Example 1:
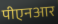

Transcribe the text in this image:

पीएनआर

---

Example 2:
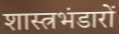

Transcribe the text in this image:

शास्त्रभंडारों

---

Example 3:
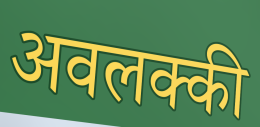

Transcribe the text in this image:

अवलक्की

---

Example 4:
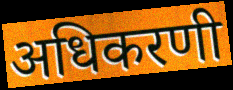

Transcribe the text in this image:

अधिकरणी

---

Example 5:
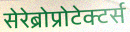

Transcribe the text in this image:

सेरेब्रोप्रोटेक्टर्स